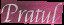
Pratul